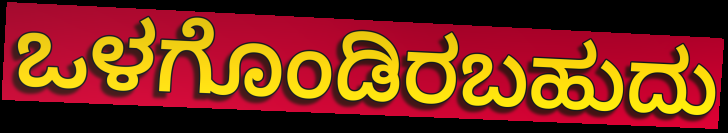
ಒಳಗೊಂಡಿರಬಹುದು